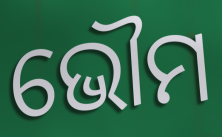
ଭୌମ